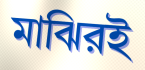
মাঝিরই